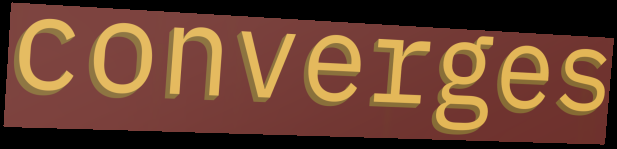
converges